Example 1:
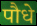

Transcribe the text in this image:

पौधे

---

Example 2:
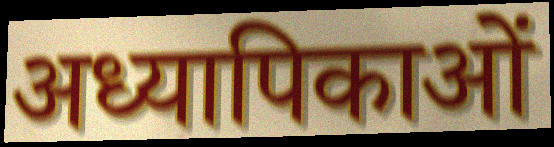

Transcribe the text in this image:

अध्यापिकाओं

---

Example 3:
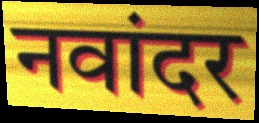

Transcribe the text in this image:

नवांदर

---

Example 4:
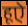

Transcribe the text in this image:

हूऐ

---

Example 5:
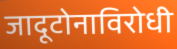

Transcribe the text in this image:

जादूटोनाविरोधी